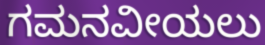
ಗಮನವೀಯಲು